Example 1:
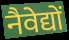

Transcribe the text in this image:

नैवेद्यों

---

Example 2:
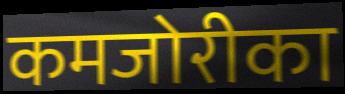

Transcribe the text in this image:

कमजोरीका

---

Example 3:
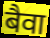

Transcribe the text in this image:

बैवा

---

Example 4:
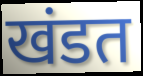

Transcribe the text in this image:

खंडत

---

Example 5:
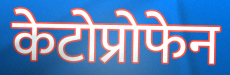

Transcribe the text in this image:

केटोप्रोफेन